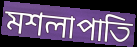
মশলাপাতি